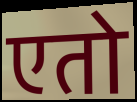
एतो